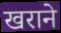
खराने